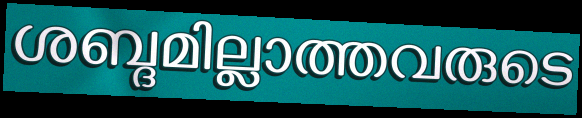
ശബ്ദമില്ലാത്തവരുടെ